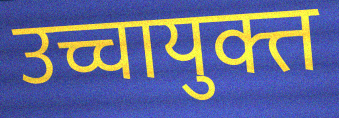
उच्चायुक्त